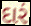
દારં